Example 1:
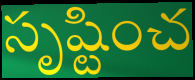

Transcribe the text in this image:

సృష్టించ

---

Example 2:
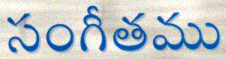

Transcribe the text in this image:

సంగీతము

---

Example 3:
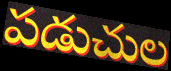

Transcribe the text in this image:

పడుచుల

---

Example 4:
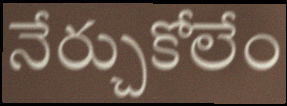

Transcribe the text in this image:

నేర్చుకోలేం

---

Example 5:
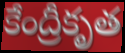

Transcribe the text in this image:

కేంద్రీకృత